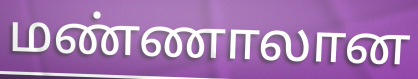
மண்ணாலான